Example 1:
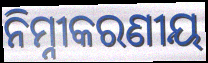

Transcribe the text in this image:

ନିମ୍ନୀକରଣୀୟ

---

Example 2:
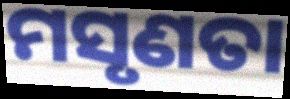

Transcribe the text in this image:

ମସୃଣତା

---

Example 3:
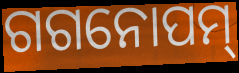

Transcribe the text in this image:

ଗଗନୋପମ୍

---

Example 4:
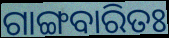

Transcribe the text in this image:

ଗାଙ୍ଗବାରିତଃ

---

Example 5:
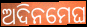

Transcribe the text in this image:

ଅଦିନମେଘ